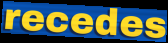
recedes